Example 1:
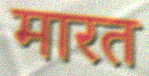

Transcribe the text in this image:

मारत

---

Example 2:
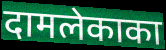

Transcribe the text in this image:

दामलेकाका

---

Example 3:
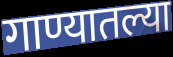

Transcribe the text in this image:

गाण्यातल्या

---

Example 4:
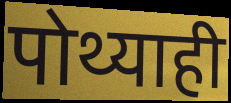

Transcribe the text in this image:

पोथ्याही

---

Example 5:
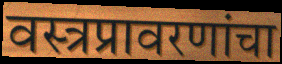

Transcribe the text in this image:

वस्त्रप्रावरणांचा